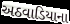
અઠવાડિયાના